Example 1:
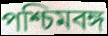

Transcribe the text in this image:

পশ্চিমবঙ্গ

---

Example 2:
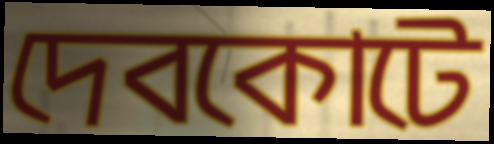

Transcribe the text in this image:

দেবকোটে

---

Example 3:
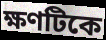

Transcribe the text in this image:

ক্ষণটিকে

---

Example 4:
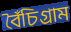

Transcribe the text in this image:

বৈঁচিগ্রাম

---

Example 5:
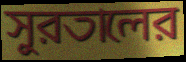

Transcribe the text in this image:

সুরতালের